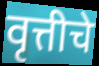
वृत्तीचे